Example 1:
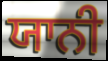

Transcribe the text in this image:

ਯਾਨੀ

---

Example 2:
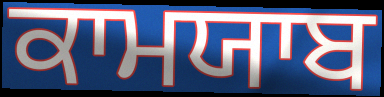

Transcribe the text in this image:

ਕਾਮਯਾਬ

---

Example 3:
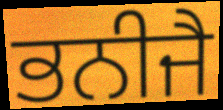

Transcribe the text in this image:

ਭਨੀਜੈ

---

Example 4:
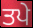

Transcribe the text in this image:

ਤਪੇ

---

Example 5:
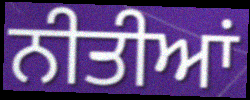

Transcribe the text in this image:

ਨੀਤੀਆਂ